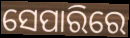
ସେପାରିରେ